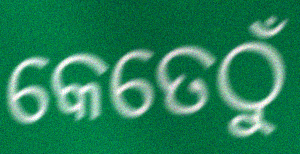
କେତେଠୁଁ